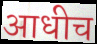
आधीच